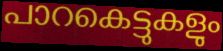
പാറകെട്ടുകളും